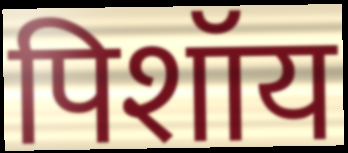
पिशॉय